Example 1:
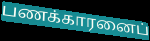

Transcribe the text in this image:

பணக்காரனைப்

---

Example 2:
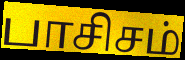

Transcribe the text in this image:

பாசிசம்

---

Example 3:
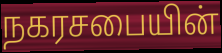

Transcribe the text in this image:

நகரசபையின்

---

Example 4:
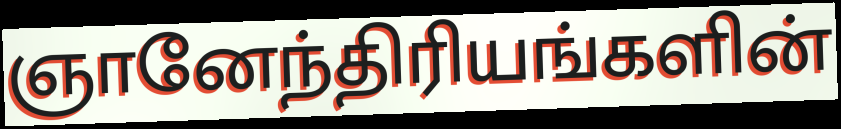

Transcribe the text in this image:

ஞானேந்திரியங்களின்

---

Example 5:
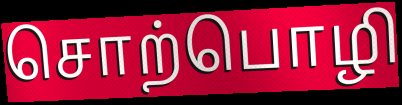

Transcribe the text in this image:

சொற்பொழி